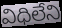
విధిలేని